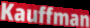
Kauffman